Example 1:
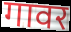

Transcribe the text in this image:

गावर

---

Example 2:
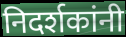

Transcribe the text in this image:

निदर्शकांनी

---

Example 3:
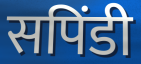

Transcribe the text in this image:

सपिंडी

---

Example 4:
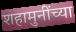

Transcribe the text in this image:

शहामुनींच्या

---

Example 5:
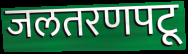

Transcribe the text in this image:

जलतरणपटू